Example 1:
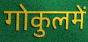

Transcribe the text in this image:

गोकुलमें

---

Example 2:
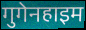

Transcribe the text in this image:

गुगेनहाइम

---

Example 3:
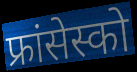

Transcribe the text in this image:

फ्रांसेस्को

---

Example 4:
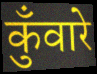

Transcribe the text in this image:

कुँवारे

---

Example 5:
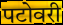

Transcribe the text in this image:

पटोवरी